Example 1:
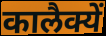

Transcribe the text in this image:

कालैक्यें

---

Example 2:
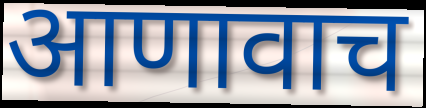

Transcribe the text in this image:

आणावाच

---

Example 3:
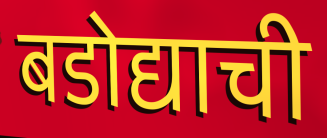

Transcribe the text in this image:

बडोद्याची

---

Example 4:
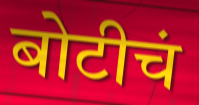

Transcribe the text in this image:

बोटीचं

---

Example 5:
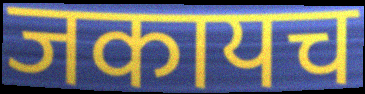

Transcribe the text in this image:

जकायच